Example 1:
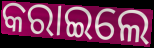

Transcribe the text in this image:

କରାଇଲେ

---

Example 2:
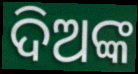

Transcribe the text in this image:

ଦିଅଙ୍କ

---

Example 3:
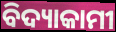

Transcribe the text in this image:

ବିଦ୍ୟାକାମୀ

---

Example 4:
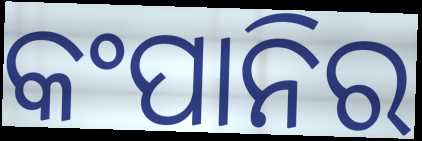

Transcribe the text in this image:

କଂପାନିର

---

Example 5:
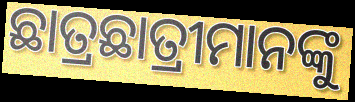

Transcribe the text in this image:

ଛାତ୍ରଛାତ୍ରୀମାନଙ୍କୁ